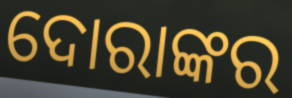
ଦୋରାଙ୍କର